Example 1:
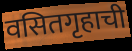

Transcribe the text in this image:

वसितगृहाची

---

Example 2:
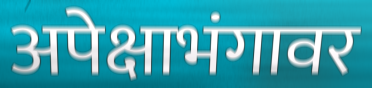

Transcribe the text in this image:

अपेक्षाभंगावर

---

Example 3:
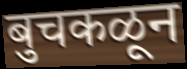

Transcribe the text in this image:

बुचकळून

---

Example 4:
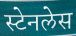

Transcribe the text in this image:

स्टेनलेस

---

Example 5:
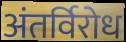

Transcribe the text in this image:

अंतर्विरोध